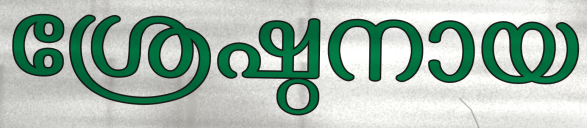
ശ്രേഷ്ഠനായ